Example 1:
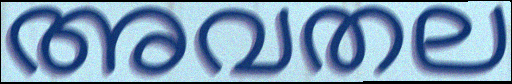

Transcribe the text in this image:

അവതല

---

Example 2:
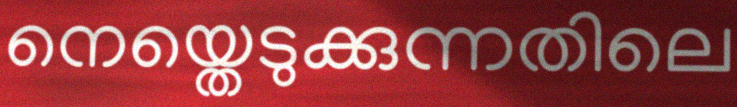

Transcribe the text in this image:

നെയ്തെടുക്കുന്നതിലെ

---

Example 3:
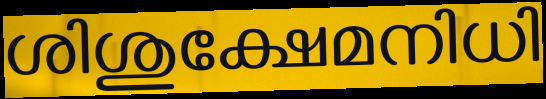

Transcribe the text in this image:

ശിശുക്ഷേമനിധി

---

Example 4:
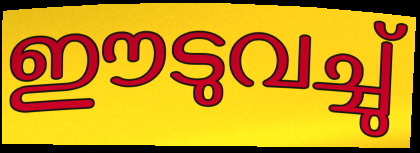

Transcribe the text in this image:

ഈടുവച്ചു്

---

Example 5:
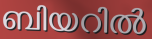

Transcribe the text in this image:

ബിയറിൽ